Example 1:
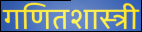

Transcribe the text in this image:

गणितशास्त्री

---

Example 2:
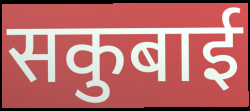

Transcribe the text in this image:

सकुबाई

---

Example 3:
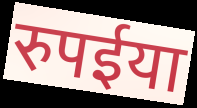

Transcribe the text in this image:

रुपईया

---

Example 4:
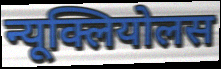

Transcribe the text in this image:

न्यूक्लियोलस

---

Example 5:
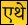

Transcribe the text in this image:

एथे